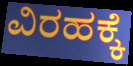
ವಿರಹಕ್ಕೆ